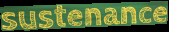
sustenance